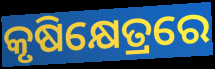
କୃଷିକ୍ଷେତ୍ରରେ